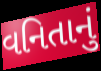
વનિતાનું